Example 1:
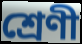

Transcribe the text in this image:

শ্রেণী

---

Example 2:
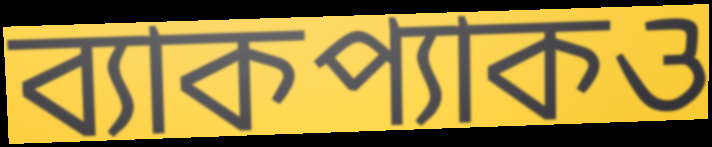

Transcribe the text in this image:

ব্যাকপ্যাকও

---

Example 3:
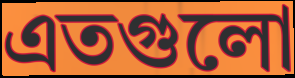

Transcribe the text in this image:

এতগুলো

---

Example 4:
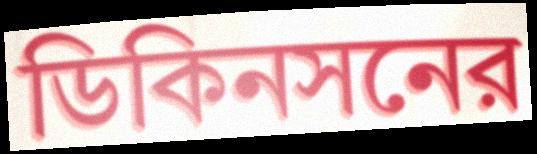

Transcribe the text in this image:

ডিকিনসনের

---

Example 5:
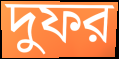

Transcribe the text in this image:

দুফর